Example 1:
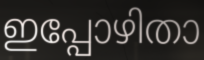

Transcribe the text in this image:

ഇപ്പോഴിതാ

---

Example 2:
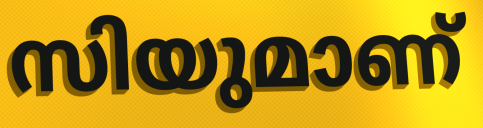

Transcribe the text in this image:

സിയുമാണ്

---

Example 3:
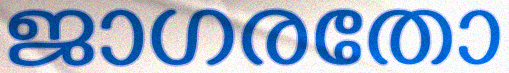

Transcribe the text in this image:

ജാഗരതോ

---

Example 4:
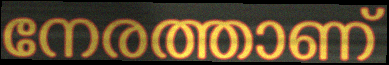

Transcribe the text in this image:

നേരത്താണ്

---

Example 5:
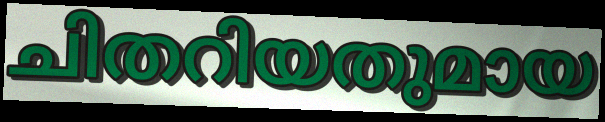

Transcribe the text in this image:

ചിതറിയതുമായ